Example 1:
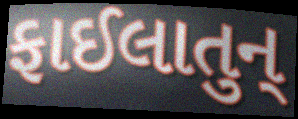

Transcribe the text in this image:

ફાઈલાતુન્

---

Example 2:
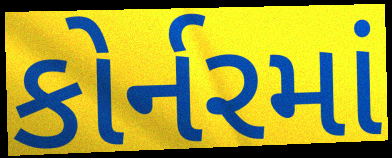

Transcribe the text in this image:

કોર્નરમાં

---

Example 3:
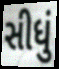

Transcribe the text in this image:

સીધું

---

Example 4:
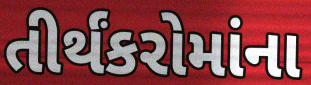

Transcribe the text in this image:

તીર્થંકરોમાંના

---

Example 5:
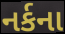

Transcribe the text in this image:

નર્કના